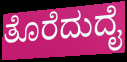
ತೊರೆದುದೈ